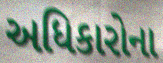
અધિકારોના